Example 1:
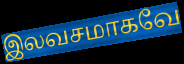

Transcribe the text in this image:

இலவசமாகவே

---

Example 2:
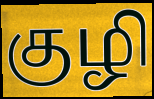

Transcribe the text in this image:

குழி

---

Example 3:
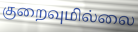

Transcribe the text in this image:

குறைவுமில்லை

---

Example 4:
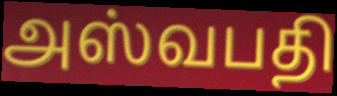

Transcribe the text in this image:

அஸ்வபதி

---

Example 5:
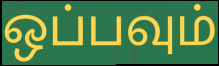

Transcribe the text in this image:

ஒப்பவும்